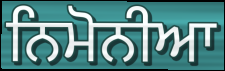
ਨਿਮੋਨੀਆ